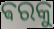
ଵରକୁ